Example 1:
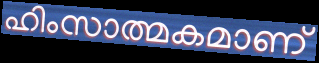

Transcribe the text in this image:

ഹിംസാത്മകമാണ്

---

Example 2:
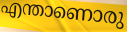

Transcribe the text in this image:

എന്താണൊരു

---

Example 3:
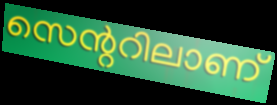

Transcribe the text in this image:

സെന്ററിലാണ്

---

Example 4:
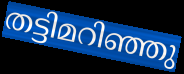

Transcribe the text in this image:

തട്ടിമറിഞ്ഞു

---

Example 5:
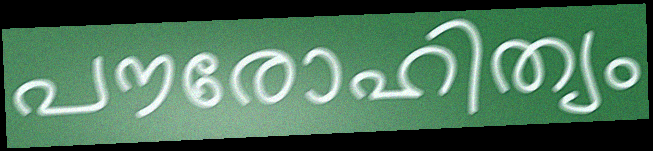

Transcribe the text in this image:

പൗരോഹിത്യം